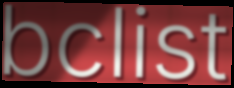
bclist